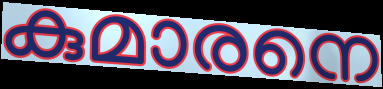
കുമാരനെ